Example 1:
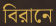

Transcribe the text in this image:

বিরানে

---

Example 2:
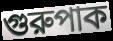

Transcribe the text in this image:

গুরুপাক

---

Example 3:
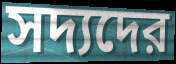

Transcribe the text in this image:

সদ্যদের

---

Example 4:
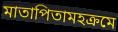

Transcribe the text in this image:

মাতাপিতামহক্রমে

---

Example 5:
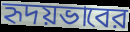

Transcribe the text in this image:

হৃদয়ভাবের